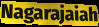
Nagarajaiah